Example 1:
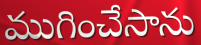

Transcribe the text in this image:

ముగించేసాను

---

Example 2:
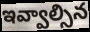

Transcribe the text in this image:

ఇవ్వాల్సిన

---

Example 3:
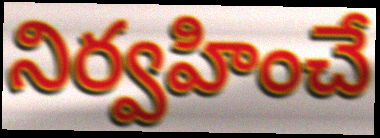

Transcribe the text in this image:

నిర్వహించే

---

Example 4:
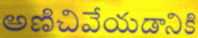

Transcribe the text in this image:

అణిచివేయడానికి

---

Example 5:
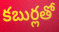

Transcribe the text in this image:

కబుర్లతో